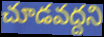
చూడవద్దని